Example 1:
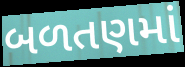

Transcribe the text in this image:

બળતણમાં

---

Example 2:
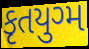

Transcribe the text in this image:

કૃતયુગ્મ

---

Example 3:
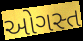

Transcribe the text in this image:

ઓગસ્ત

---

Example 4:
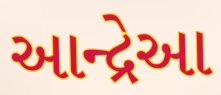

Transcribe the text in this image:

આન્દ્રેઆ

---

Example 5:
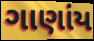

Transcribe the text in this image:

ગાણાંય